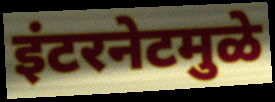
इंटरनेटमुळे